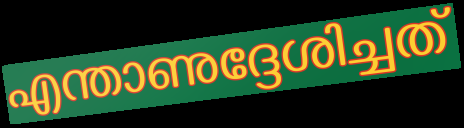
എന്താണുദ്ദേശിച്ചത്